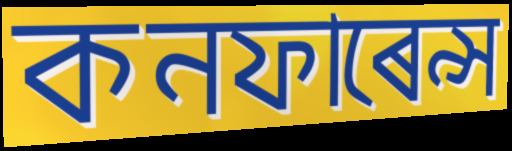
কনফাৰেন্স